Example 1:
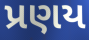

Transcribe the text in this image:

પ્રણય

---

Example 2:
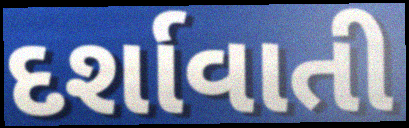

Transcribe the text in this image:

દર્શાવાતી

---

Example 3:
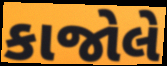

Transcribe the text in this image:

કાજોલે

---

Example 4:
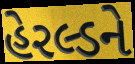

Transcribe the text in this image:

હેરલ્ડને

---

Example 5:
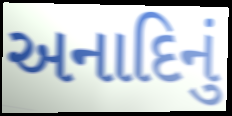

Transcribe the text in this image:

અનાદિનું